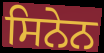
ਸਿਨੇਨ